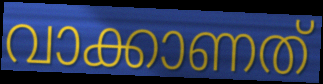
വാക്കാണത്